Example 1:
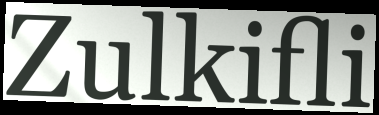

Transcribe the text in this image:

Zulkifli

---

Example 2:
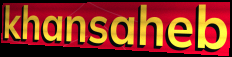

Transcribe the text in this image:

khansaheb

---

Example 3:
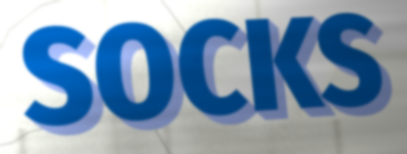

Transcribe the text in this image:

SOCKS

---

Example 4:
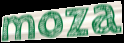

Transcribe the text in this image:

moza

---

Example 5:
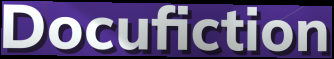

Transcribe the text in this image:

Docufiction